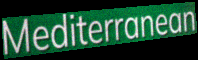
Mediterranean